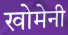
खोमेनी